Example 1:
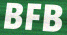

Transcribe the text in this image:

BFB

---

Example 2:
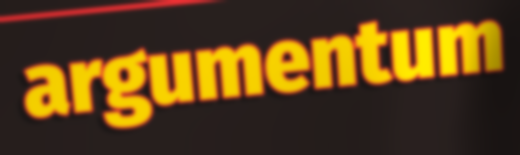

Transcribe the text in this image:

argumentum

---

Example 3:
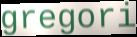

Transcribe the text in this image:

gregori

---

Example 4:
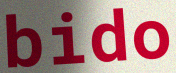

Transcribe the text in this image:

bido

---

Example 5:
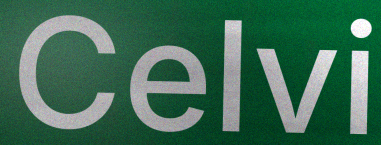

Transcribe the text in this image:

Celvi